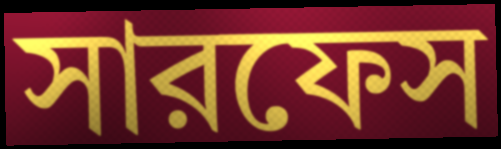
সারফেস